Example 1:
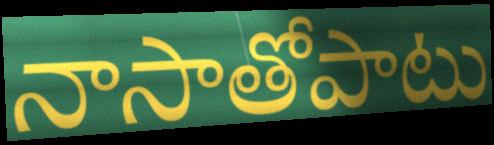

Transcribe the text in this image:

నాసాతోపాటు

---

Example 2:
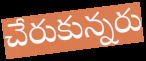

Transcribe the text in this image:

చేరుకున్నరు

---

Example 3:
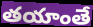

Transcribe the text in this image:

తయాంతే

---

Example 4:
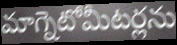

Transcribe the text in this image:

మాగ్నెటోమీటర్లను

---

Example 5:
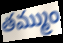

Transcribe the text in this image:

తమ్ముం